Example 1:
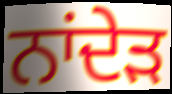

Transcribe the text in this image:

ਨਾਂਦੇੜ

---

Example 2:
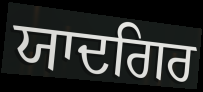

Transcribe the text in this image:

ਯਾਦਗਿਰ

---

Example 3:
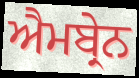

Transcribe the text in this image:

ਐਮਬ੍ਰੇਨ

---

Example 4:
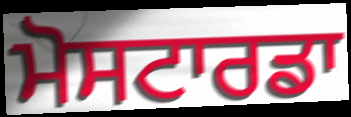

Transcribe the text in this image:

ਮੋਸਟਾਰਡਾ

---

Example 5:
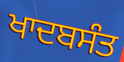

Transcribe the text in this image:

ਖਾਦਬਸੰਤ